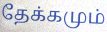
தேக்கமும்